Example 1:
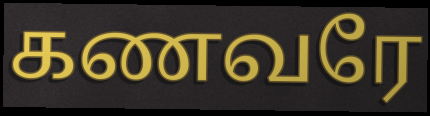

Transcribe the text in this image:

கணவரே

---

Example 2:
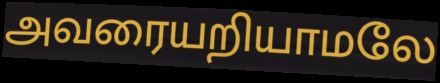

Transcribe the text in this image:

அவரையறியாமலே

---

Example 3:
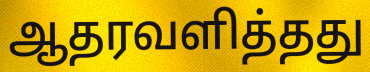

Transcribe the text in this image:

ஆதரவளித்தது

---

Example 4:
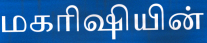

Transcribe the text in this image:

மகரிஷியின்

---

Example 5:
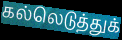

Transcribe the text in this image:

கல்லெடுத்துக்